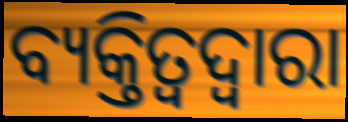
ବ୍ୟକ୍ତିତ୍ୱଦ୍ୱାରା